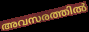
അവസരത്തിൽ